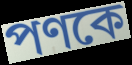
পণকে